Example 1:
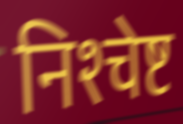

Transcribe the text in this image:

निश्चेष्ट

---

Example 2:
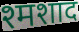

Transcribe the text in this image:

श्मशाद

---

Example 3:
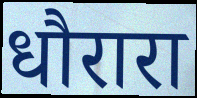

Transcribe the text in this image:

धौरारा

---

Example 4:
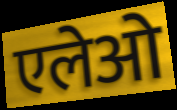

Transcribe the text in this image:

एलेओ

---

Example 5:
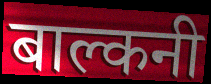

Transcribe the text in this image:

बाल्कनी